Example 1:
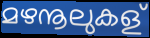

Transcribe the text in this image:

മഴനൂലുകള്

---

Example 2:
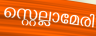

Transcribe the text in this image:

സ്റ്റെല്ലാമേരി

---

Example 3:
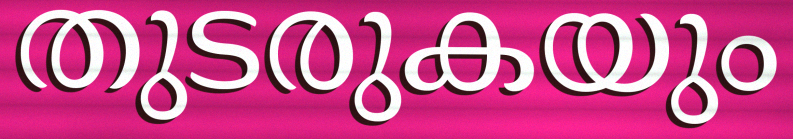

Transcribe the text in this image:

തുടരുകയും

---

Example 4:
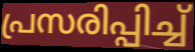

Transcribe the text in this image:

പ്രസരിപ്പിച്ച്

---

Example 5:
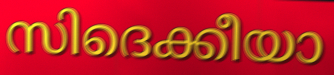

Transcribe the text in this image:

സിദെക്കീയാ